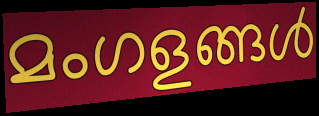
മംഗളങ്ങൾ